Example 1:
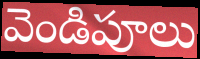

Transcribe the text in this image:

వెండిపూలు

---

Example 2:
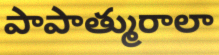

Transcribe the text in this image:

పాపాత్మురాలా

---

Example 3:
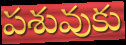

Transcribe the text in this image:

పశువుకు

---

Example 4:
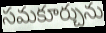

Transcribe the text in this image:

సమకూర్చును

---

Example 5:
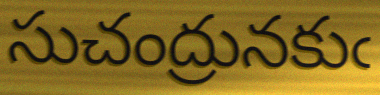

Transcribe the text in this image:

సుచంద్రునకుఁ